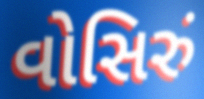
વોસિરું